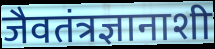
जैवतंत्रज्ञानाशी